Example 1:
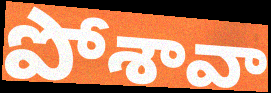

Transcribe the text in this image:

పోశావా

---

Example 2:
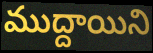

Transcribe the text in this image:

ముద్దాయిని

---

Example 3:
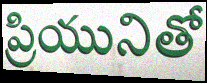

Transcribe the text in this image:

ప్రియునితో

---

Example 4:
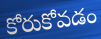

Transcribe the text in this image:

కోరుకోవడం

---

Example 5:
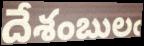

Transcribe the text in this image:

దేశంబులఁ